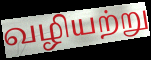
வழியற்று